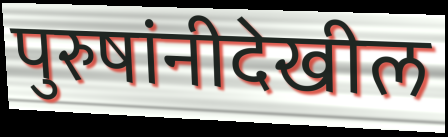
पुरुषांनीदेखील